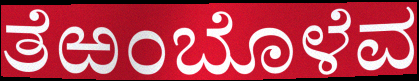
ತೆಱಂಬೊಳೆವ